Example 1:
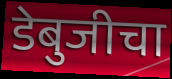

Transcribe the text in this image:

डेबुजीचा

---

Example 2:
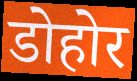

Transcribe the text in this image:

डोहोर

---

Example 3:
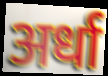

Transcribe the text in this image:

अर्धा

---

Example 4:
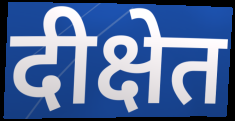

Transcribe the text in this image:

दीक्षेत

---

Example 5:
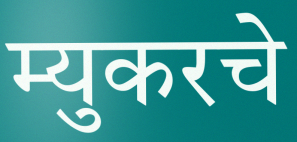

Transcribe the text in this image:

म्युकरचे